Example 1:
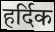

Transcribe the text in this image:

हर्दिक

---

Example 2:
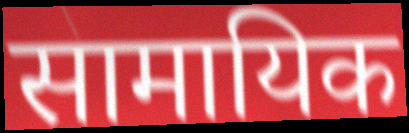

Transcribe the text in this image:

सामायिक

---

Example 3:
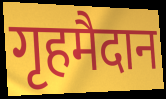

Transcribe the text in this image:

गृहमैदान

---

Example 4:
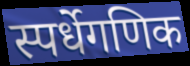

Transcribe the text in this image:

स्पर्धेगणिक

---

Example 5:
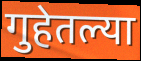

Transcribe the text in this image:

गुहेतल्या